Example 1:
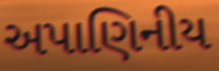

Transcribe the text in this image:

અપાણિનીય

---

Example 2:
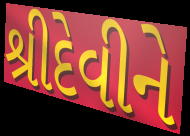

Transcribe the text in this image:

શ્રીદેવીને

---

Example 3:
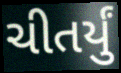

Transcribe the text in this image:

ચીતર્યું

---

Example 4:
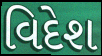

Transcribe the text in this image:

વિદેશ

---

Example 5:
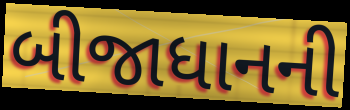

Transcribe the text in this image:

બીજાધાનની